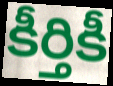
కీర్తికీ